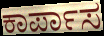
ಕಾರ್ಪಾಸ